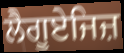
ਲੈਗੂਏਜਿਜ਼